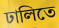
ঢালিতে